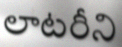
లాటరీని